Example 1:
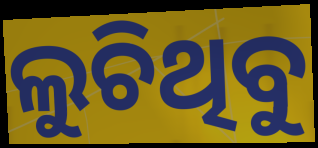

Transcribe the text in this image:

ଲୁଚିଥିବୁ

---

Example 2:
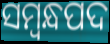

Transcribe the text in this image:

ସମ୍ବନ୍ଧପଦ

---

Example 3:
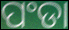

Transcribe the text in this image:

ପଂଡା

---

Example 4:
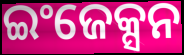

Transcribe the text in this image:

ଇଂଜେକ୍ସନ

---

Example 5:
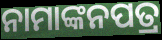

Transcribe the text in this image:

ନାମାଙ୍କନପତ୍ର